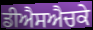
ਡੀਐਸਐਚਕੇ